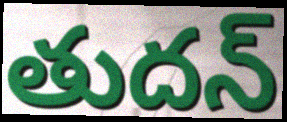
తుదన్